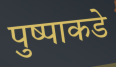
पुष्पाकडे